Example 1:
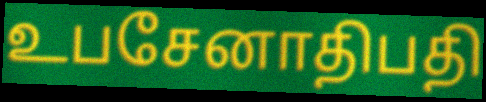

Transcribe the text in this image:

உபசேனாதிபதி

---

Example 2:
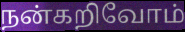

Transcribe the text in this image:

நன்கறிவோம்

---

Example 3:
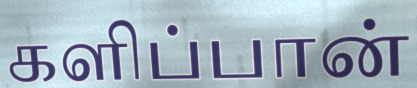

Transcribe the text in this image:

களிப்பான்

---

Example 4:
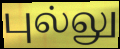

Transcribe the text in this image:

புல்லு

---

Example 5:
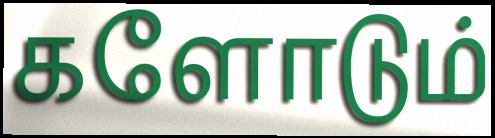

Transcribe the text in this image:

களோடும்